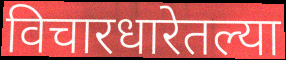
विचारधारेतल्या